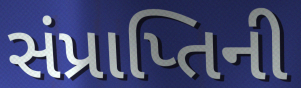
સંપ્રાપ્તિની